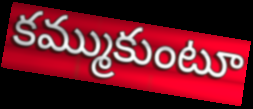
కమ్ముకుంటూ